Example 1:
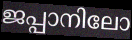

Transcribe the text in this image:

ജപ്പാനിലോ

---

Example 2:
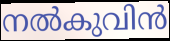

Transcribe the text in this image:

നൽകുവിൻ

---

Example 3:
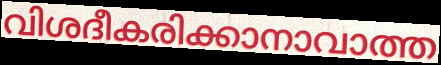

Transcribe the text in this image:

വിശദീകരിക്കാനാവാത്ത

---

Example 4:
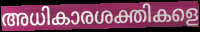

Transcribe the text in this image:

അധികാരശക്തികളെ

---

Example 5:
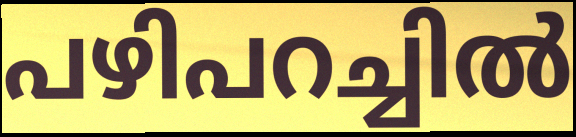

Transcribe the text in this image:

പഴിപറച്ചിൽ